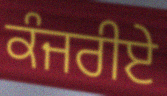
ਕੰਜਰੀਏ